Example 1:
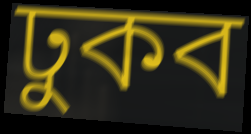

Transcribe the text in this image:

ঢুকব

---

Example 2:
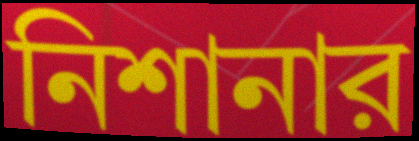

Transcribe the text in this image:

নিশানার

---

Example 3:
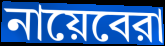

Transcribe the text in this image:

নায়েবেরা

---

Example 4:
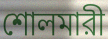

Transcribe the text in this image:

শোলমারী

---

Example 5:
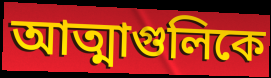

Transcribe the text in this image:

আত্মাগুলিকে